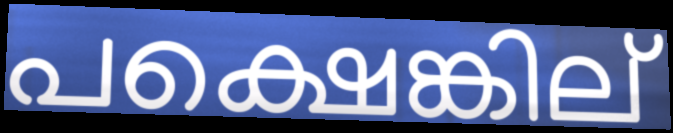
പക്ഷെങ്കില്